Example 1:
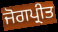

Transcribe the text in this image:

ਜੋਗਪ੍ਰੀਤ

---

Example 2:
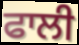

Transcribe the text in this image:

ਫਾਲੀ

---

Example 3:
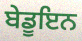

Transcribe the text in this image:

ਬੇਡੂਇਨ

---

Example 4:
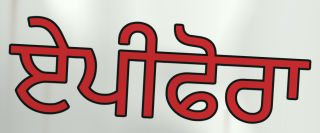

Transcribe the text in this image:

ਏਪੀਫੋਰਾ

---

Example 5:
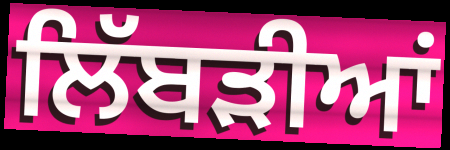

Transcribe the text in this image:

ਲਿੱਬੜੀਆਂ